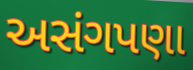
અસંગપણા